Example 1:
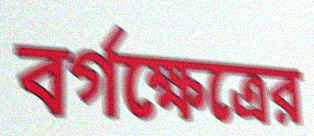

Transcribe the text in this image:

বর্গক্ষেত্রের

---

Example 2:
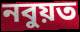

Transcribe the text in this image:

নবুয়ত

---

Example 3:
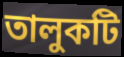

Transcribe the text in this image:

তালুকটি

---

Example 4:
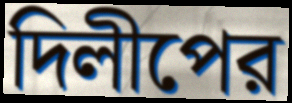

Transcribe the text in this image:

দিলীপের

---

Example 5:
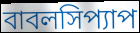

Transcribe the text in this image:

বাবলসিপ্যাপ